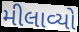
મીલાવ્યો